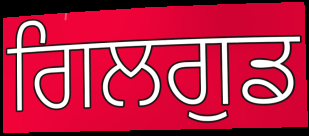
ਗਿਲਗੁਡ